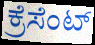
ಕ್ರೆಸೆಂಟ್